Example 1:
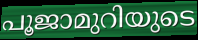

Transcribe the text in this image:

പൂജാമുറിയുടെ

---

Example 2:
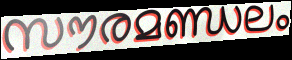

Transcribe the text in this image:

സൗരമണ്ഡലം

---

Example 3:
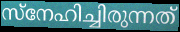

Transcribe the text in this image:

സ്നേഹിച്ചിരുന്നത്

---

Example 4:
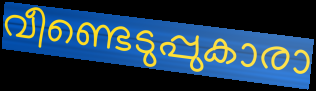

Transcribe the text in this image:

വീണ്ടെടുപ്പുകാരാ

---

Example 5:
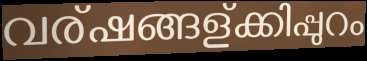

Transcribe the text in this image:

വര്ഷങ്ങള്ക്കിപ്പുറം